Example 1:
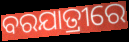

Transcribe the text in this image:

ବରଯାତ୍ରୀରେ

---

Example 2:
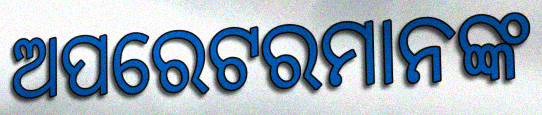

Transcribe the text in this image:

ଅପରେଟରମାନଙ୍କ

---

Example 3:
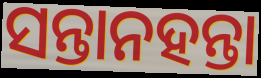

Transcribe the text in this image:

ସନ୍ତାନହନ୍ତା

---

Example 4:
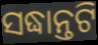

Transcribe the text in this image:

ସଦ୍ଧାନ୍ତଟି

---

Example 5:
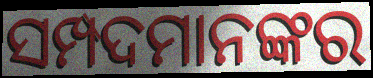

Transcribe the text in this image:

ସମ୍ପଦମାନଙ୍କର